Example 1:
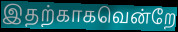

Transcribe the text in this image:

இதற்காகவென்றே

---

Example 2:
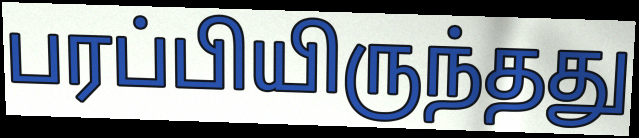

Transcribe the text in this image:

பரப்பியிருந்தது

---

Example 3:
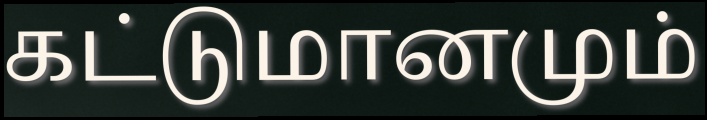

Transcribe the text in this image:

கட்டுமானமும்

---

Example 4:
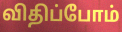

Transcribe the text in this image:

விதிப்போம்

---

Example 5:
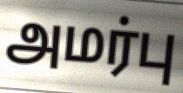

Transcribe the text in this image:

அமர்பு